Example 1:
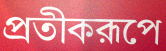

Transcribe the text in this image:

প্রতীকরূপে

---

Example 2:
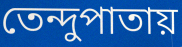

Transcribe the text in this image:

তেন্দুপাতায়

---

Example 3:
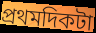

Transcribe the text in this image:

প্রথমদিকটা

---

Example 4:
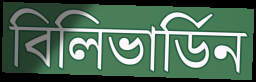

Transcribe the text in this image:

বিলিভার্ডিন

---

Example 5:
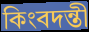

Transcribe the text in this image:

কিংবদন্তী